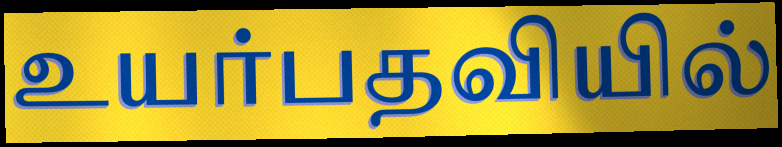
உயர்பதவியில்